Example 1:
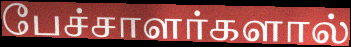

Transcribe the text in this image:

பேச்சாளர்களால்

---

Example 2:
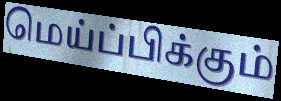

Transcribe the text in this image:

மெய்ப்பிக்கும்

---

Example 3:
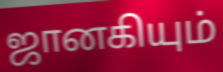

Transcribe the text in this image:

ஜானகியும்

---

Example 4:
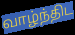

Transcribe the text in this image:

வாழ்ந்திட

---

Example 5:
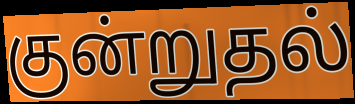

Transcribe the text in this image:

குன்றுதல்